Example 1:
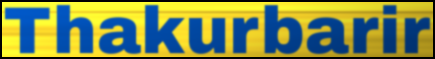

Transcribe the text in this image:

Thakurbarir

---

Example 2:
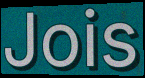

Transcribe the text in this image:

Jois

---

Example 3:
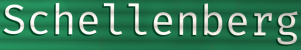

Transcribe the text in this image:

Schellenberg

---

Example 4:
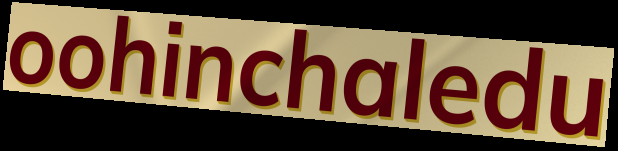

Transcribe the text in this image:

oohinchaledu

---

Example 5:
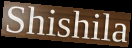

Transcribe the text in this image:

Shishila